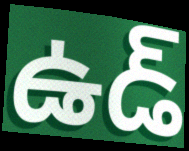
ఉడ్